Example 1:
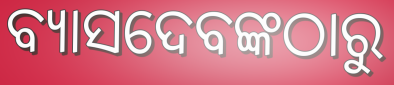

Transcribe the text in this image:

ବ୍ୟାସଦେବଙ୍କଠାରୁ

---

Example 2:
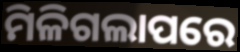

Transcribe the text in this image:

ମିଳିଗଲାପରେ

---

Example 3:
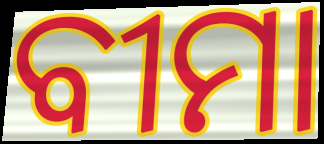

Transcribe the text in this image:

ବୀମା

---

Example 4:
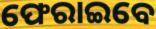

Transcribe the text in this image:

ଫେରାଇବେ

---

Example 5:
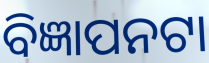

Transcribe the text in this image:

ବିଜ୍ଞାପନଟା